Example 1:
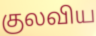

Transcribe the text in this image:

குலவிய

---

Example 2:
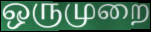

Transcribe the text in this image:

ஒருமுறை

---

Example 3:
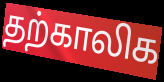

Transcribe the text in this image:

தற்காலிக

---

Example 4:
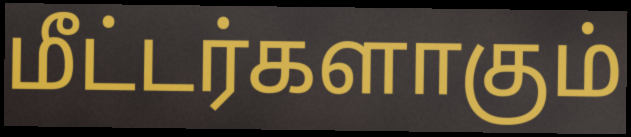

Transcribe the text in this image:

மீட்டர்களாகும்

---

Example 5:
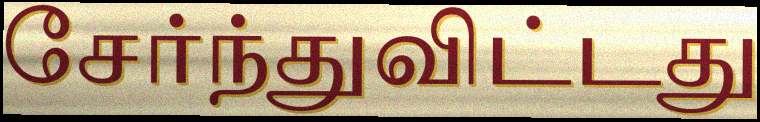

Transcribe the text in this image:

சேர்ந்துவிட்டது